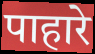
पाहारे